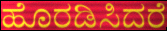
ಹೊರಡಿಸಿದರೆ